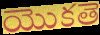
యొకతె